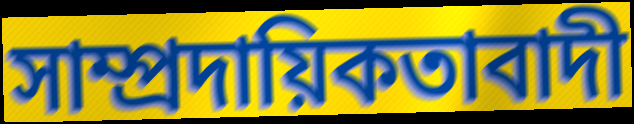
সাম্প্ৰদায়িকতাবাদী